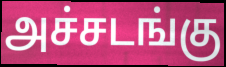
அச்சடங்கு